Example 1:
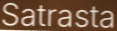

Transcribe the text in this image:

Satrasta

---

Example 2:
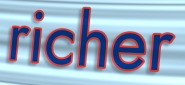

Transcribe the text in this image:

richer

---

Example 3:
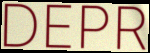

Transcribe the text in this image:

DEPR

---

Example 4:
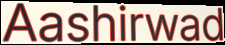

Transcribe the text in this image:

Aashirwad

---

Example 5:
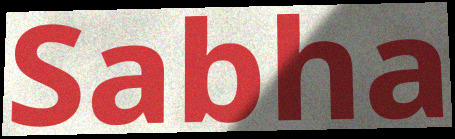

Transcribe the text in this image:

Sabha